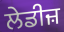
ਲੇਡੀਜ਼